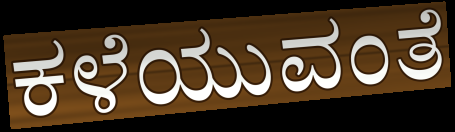
ಕಳೆಯುವಂತೆ